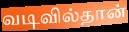
வடிவில்தான்